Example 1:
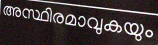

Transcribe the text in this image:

അസ്ഥിരമാവുകയും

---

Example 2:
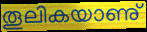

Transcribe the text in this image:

തൂലികയാണു്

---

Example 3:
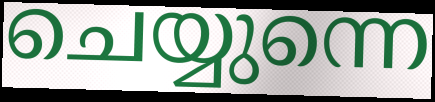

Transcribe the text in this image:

ചെയ്യുന്നെ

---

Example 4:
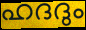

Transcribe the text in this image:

ഹദദും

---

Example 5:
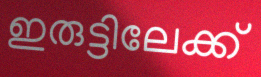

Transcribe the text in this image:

ഇരുട്ടിലേക്ക്